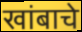
खांबाचे